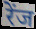
रेंज